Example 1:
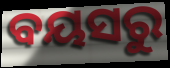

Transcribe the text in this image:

ବୟସରୁ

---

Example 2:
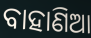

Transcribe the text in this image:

ବାହାଣିଆ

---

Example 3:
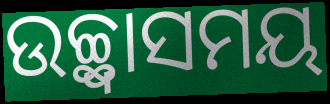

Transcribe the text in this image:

ଉଚ୍ଛ୍ୱାସମୟ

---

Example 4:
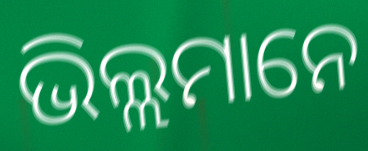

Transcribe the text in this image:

ଭିଲ୍ଲମାନେ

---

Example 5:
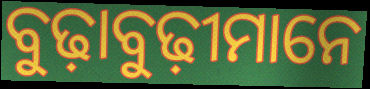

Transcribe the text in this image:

ବୁଢ଼ାବୁଢ଼ୀମାନେ